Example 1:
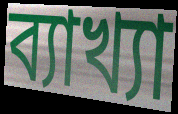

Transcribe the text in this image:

ব্যাখ্যা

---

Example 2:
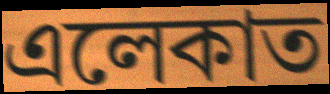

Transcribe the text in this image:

এলেকাত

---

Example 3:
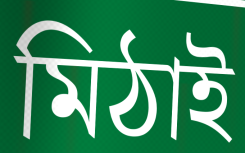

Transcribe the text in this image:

মিঠাই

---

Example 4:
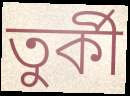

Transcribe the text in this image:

তুৰ্কী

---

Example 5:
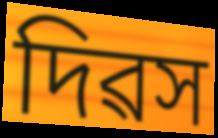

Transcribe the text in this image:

দিৱস